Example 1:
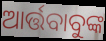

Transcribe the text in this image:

ଆର୍ତ୍ତବାବୁଙ୍କ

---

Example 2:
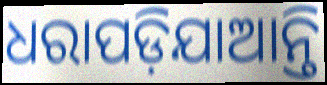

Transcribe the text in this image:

ଧରାପଡ଼ିଯାଆନ୍ତି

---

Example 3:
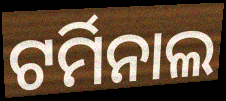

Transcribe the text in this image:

ଟର୍ମିନାଲ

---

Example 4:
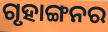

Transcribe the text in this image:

ଗୃହାଙ୍ଗନର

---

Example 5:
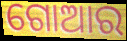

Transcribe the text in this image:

ଗୋଆର